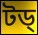
টড্